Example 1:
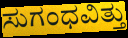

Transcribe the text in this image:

ಸುಗಂಧವಿತ್ತು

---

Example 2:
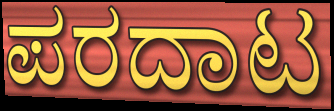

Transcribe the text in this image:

ಪರದಾಟ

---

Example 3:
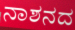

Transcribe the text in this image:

ನಾಶನದ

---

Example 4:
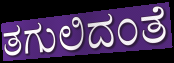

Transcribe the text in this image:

ತಗುಲಿದಂತೆ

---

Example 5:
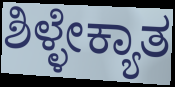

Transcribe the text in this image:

ಶಿಳ್ಳೇಕ್ಯಾತ